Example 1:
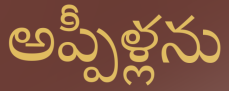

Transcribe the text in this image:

అప్పీళ్లను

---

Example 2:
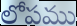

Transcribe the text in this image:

లోపము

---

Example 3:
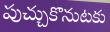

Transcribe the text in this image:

పుచ్చుకొనుటకు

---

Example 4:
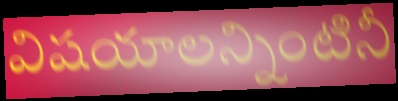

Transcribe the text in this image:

విషయాలన్నింటినీ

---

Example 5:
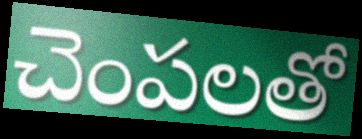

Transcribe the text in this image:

చెంపలతో